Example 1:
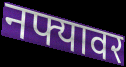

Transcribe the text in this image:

नफ्यावर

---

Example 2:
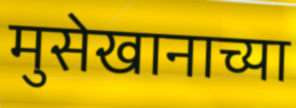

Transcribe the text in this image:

मुसेखानाच्या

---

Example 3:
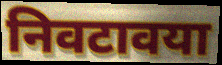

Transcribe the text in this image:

निवटावया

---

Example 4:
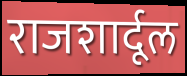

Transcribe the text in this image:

राजशार्दूल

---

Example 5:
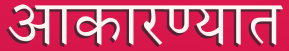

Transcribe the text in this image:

आकारण्यात